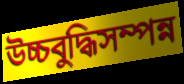
উচ্চবুদ্ধিসম্পন্ন